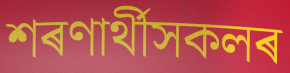
শৰণাৰ্থীসকলৰ